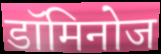
डॉमिनोज